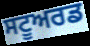
ਸਟੂਅਰਡ